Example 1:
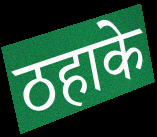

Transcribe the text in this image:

ठहाके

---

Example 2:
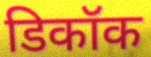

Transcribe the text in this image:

डिकॉक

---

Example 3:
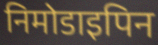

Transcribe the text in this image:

निमोडाइपिन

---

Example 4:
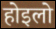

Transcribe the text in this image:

होइलो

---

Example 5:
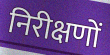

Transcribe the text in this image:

निरीक्षणों